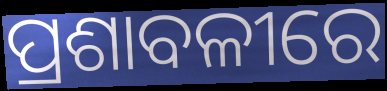
ପ୍ରଶାବଳୀରେ